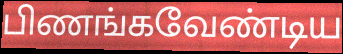
பிணங்கவேண்டிய